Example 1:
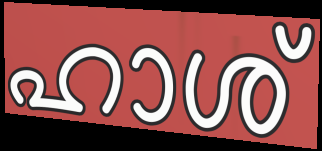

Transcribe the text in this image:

ഹാശ്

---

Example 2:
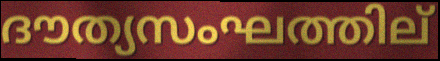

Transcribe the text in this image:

ദൗത്യസംഘത്തില്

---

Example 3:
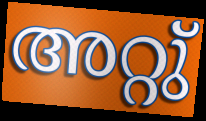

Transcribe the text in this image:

അറ്റു്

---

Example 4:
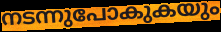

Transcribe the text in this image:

നടന്നുപോകുകയും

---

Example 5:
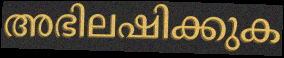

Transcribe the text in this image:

അഭിലഷിക്കുക